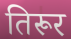
तिरूर